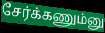
சேர்க்கணும்னு